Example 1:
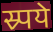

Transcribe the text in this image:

स्र्पये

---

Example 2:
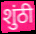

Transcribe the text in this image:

शुंठी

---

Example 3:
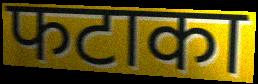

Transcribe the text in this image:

फटाका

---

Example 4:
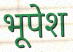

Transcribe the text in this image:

भूपेश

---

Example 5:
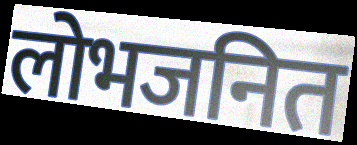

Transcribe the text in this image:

लोभजनित